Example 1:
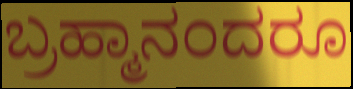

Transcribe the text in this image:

ಬ್ರಹ್ಮಾನಂದರೂ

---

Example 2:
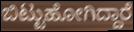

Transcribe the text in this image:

ಬಿಟ್ಟುಹೋಗಿದ್ದಾರೆ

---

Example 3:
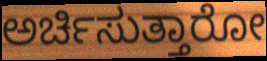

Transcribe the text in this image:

ಅರ್ಚಿಸುತ್ತಾರೋ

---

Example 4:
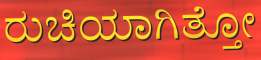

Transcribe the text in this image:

ರುಚಿಯಾಗಿತ್ತೋ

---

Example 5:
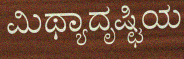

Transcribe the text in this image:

ಮಿಥ್ಯಾದೃಷ್ಟಿಯ